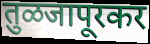
तुळजापूरकर